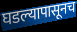
घडल्यापासूनच